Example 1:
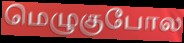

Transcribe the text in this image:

மெழுகுபோல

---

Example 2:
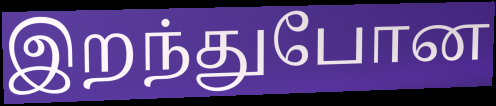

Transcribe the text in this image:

இறந்துபோன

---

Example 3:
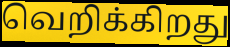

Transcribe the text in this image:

வெறிக்கிறது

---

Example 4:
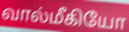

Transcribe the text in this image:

வால்மீகியோ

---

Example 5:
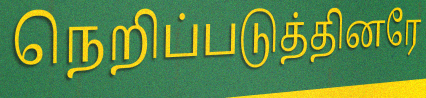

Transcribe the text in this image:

நெறிப்படுத்தினரே